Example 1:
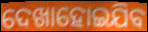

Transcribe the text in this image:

ଦେଖାହୋଇଯିବ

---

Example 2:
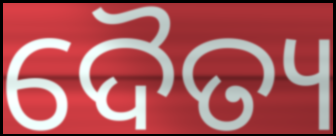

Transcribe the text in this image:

ଦୈତ୍ୟ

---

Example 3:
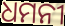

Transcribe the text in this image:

ଧମନୀ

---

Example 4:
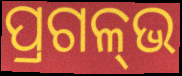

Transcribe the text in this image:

ପ୍ରଗଳ୍‌ଭ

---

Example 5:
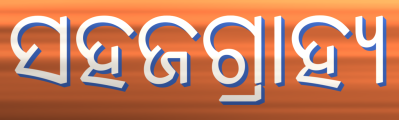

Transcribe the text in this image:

ସହଜଗ୍ରାହ୍ୟ